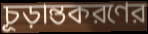
চূড়ান্তকরণের